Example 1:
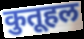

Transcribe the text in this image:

कुतूहल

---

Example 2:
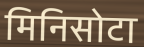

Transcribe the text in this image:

मिनिसोटा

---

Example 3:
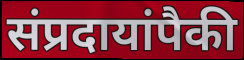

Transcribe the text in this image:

संप्रदायांपैकी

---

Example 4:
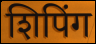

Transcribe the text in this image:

शिपिंग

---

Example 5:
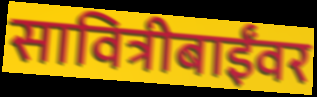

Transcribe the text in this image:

सावित्रीबाईंवर